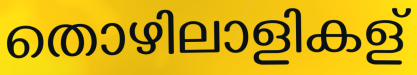
തൊഴിലാളികള്